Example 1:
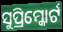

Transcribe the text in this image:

ସୁପ୍ରିମ୍କୋର୍ଟ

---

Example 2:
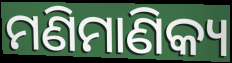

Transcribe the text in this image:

ମଣିମାଣିକ୍ୟ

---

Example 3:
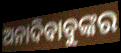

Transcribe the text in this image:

ଅନାଦିବାବୁଙ୍କର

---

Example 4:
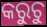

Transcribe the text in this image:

କରୁଚୁ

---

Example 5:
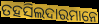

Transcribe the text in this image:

ତହସିଲଦାରମାନେ